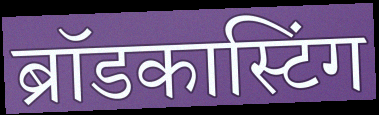
ब्रॉडकास्टिंग